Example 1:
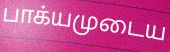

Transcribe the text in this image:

பாக்யமுடைய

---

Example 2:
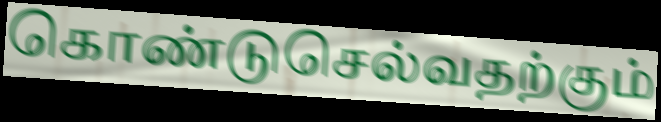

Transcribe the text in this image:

கொண்டுசெல்வதற்கும்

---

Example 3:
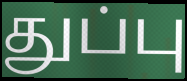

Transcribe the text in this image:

துப்பு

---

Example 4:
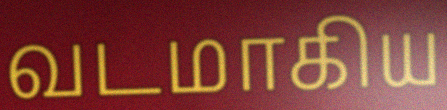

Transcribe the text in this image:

வடமாகிய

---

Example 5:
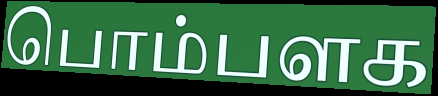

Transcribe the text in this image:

பொம்பளக